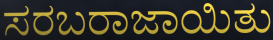
ಸರಬರಾಜಾಯಿತು